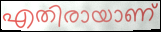
എതിരായാണ്